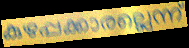
കുഴപ്പക്കാരല്ലെന്ന്